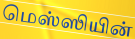
மெஸ்ஸியின்